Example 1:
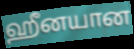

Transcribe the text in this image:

ஹீனயான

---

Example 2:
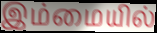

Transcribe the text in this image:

இம்மையில்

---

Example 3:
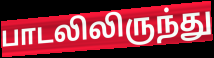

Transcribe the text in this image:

பாடலிலிருந்து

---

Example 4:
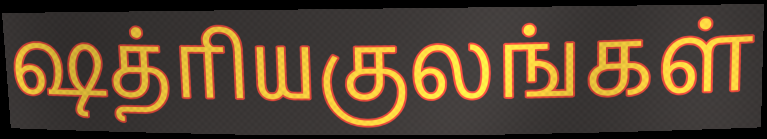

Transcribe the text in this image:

ஷத்ரியகுலங்கள்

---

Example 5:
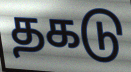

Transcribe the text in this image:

தகடு